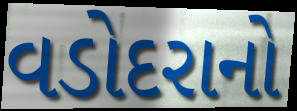
વડોદરાનો